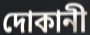
দোকানী